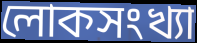
লোকসংখ্যা